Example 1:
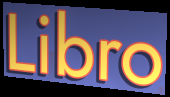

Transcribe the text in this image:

Libro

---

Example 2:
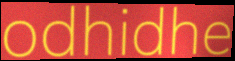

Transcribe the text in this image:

odhidhe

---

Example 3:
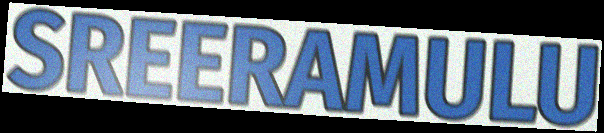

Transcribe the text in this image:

SREERAMULU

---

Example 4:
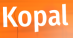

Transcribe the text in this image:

Kopal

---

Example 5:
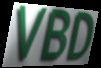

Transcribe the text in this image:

VBD